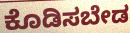
ಕೊಡಿಸಬೇಡ